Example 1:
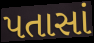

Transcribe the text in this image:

પતાસાં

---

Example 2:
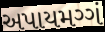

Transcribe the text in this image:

અપાયમગ્ગં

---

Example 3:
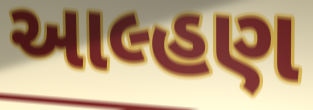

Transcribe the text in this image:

આલ્હણ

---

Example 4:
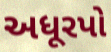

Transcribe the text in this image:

અધૂરપો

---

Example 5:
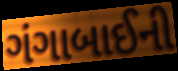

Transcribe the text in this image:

ગંગાબાઈની